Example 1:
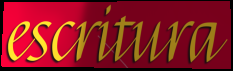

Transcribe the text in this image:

escritura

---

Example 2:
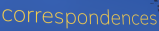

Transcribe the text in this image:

correspondences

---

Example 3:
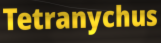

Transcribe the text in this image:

Tetranychus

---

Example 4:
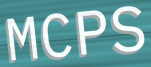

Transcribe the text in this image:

MCPS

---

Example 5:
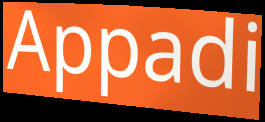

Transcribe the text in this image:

Appadi